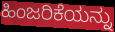
ಹಿಂಜರಿಕೆಯನ್ನು